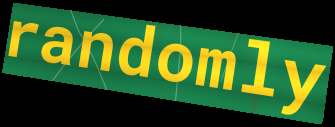
randomly